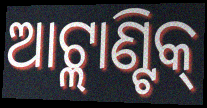
ଆଟ୍ଲାଣ୍ଟିକ୍